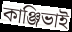
কাঞ্জিভাই